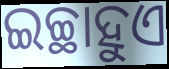
ଇଚ୍ଛାହୁଏ